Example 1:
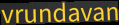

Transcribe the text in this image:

vrundavan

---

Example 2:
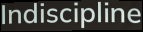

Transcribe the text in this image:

Indiscipline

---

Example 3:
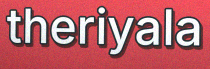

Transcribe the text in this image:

theriyala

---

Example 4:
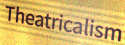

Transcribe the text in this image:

Theatricalism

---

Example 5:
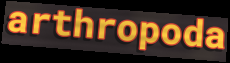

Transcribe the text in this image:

arthropoda